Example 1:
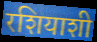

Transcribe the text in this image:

रशियाशी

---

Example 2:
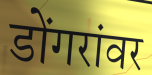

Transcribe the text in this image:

डोंगरांवर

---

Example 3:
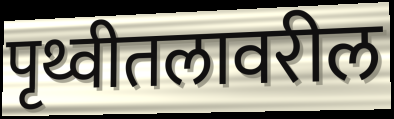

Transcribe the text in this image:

पृथ्वीतलावरील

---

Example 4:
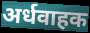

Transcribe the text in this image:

अर्धवाहक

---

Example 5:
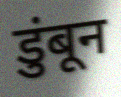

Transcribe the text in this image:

डुंबून